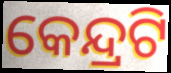
କେନ୍ଦ୍ରଟି